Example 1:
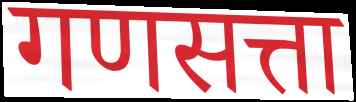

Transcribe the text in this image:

गणसत्ता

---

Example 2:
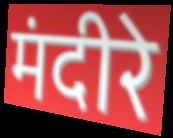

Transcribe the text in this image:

मंदीरे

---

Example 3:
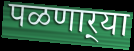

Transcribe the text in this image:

पळणार्या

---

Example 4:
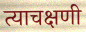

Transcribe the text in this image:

त्याचक्षणी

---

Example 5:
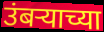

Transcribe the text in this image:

उंबऱ्याच्या